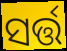
ସର୍ତ୍ତ